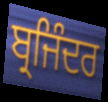
ਬ੍ਰਜਿੰਦਰ